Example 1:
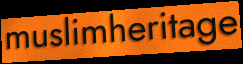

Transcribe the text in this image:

muslimheritage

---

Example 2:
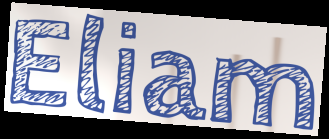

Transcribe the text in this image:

Eliam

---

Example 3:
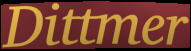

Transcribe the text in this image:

Dittmer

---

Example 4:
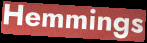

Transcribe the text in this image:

Hemmings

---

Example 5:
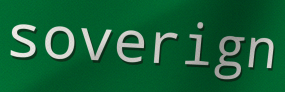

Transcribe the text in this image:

soverign